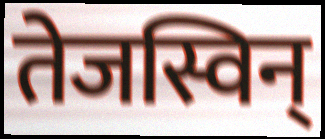
तेजस्विन्